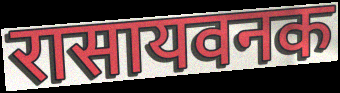
रासायवनक